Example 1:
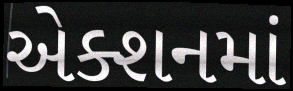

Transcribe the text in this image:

એક્શનમાં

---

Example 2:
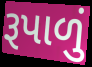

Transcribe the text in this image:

રૂપાળું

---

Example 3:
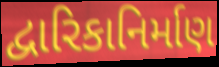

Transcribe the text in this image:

દ્વારિકાનિર્માણ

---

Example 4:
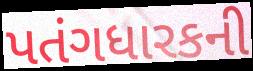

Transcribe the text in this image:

પતંગધારકની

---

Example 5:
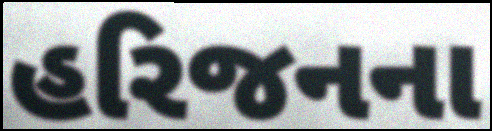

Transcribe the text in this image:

હરિજનના